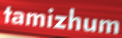
tamizhum